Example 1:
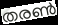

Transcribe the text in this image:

തരൺ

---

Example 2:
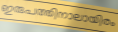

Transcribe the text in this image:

ഇരുപത്തിനാലായിരം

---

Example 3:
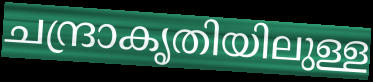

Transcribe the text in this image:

ചന്ദ്രാകൃതിയിലുള്ള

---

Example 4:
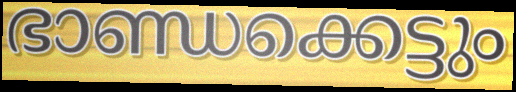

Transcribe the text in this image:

ഭാണ്ഡക്കെട്ടും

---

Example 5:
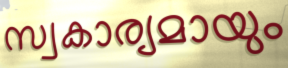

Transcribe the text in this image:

സ്വകാര്യമായും